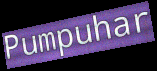
Pumpuhar